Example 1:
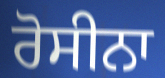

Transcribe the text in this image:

ਰੋਸੀਨਾ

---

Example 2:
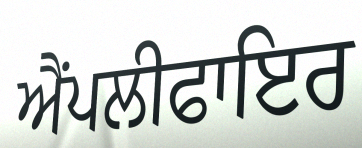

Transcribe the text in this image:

ਐਂਪਲੀਫਾਇਰ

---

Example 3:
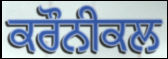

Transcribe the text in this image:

ਕਰੌਨੀਕਲ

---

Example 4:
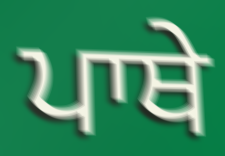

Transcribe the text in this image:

ਪਾਥੇ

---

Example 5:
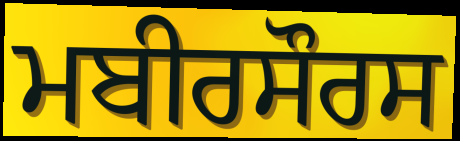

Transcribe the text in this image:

ਮਬੀਰਸੌਰਸ